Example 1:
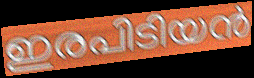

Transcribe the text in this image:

ഇരപിടിയൻ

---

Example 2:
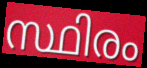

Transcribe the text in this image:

സ്ഥിരം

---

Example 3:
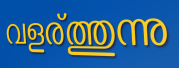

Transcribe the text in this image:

വളര്ത്തുന്നു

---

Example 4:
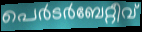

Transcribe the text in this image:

പെർടർബേറ്റീവ്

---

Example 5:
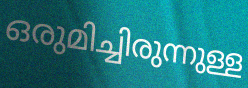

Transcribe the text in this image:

ഒരുമിച്ചിരുന്നുള്ള